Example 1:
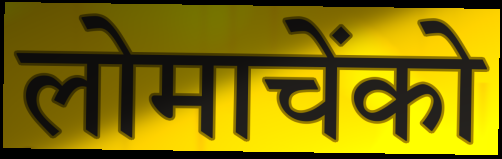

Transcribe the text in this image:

लोमाचेंको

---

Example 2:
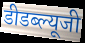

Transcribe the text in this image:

डीडब्ल्यूजी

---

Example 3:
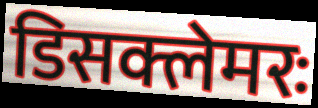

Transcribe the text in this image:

डिसक्लेमरः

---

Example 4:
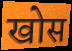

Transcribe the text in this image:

खोस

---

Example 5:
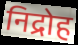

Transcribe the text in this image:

निद्रोह